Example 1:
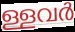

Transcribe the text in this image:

ള്ളവർ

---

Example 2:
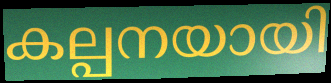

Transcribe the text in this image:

കല്പനയായി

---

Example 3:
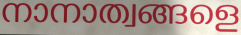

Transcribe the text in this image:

നാനാത്വങ്ങളെ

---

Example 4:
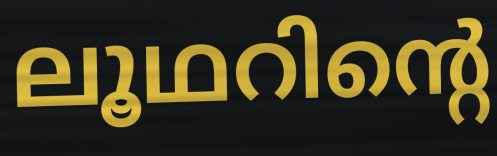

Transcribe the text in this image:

ലൂഥറിന്റെ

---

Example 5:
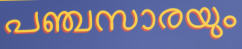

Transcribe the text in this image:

പഞ്ചസാരയും